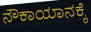
ನೌಕಾಯಾನಕ್ಕೆ